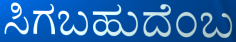
ಸಿಗಬಹುದೆಂಬ